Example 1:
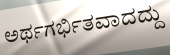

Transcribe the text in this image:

ಅರ್ಥಗರ್ಭಿತವಾದದ್ದು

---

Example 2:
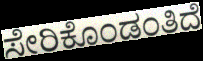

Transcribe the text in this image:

ಸೇರಿಕೊಂಡಂತಿದೆ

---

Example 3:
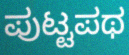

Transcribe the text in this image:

ಪುಟ್ಟಪಥ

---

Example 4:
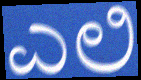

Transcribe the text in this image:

ಎಲಿ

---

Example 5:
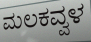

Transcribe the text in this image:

ಮಲಕವ್ವಳ